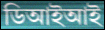
ডিআইআই